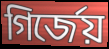
গির্জেয়